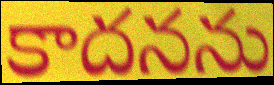
కాదనను